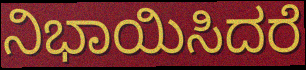
ನಿಭಾಯಿಸಿದರೆ